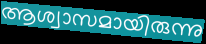
ആശ്വാസമായിരുന്നു